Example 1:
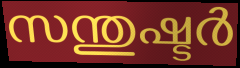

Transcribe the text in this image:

സന്തുഷ്ടർ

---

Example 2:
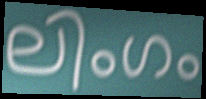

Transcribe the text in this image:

ലിംഗം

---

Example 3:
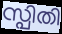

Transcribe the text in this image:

സ്പിതി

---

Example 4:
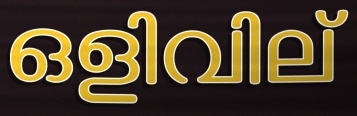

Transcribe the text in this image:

ഒളിവില്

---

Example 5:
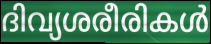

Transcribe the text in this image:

ദിവ്യശരീരികൾ